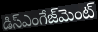
డిస్ఎంగేజ్‌మెంట్